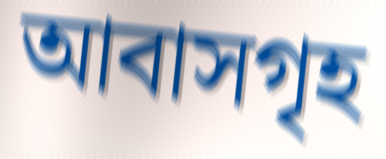
আবাসগৃহ